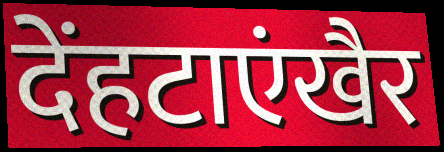
देंहटाएंखैर